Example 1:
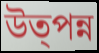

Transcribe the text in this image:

উত্পন্ন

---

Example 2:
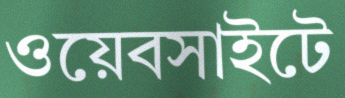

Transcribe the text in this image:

ওয়েবসাইটে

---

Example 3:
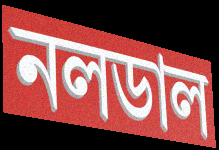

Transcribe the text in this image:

নলডাল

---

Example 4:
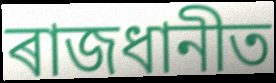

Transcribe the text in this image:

ৰাজধানীত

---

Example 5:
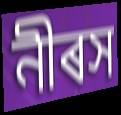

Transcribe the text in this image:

নীৰস